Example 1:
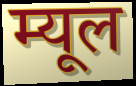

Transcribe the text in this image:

म्यूल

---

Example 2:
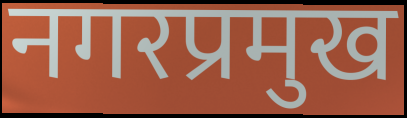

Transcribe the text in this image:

नगरप्रमुख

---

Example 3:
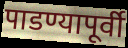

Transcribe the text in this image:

पाडण्यापूर्वी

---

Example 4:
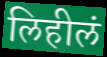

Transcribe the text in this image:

लिहीलं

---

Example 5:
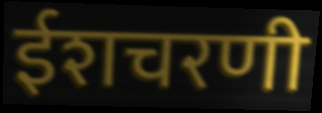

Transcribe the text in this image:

ईशचरणी